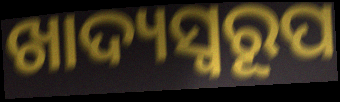
ଖାଦ୍ୟସ୍ୱରୂପ